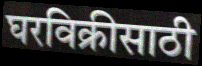
घरविक्रीसाठी